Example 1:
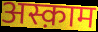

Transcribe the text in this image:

अस्क़ाम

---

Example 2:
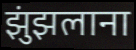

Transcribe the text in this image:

झुंझलाना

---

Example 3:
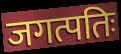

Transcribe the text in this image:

जगत्पतिः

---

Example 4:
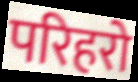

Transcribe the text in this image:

परिहरो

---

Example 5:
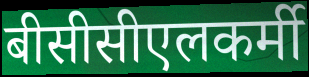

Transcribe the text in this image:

बीसीसीएलकर्मी